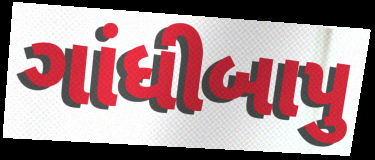
ગાંધીબાપુ